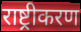
राष्ट्रीकरण